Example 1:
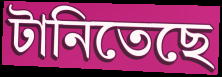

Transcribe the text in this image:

টানিতেছে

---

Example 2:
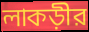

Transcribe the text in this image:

লাকড়ীর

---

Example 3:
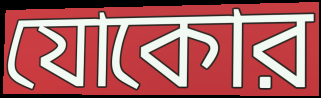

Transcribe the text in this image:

যোকোর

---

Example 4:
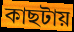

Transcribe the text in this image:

কাছটায়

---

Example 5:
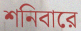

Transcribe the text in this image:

শনিবারে